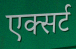
एक्सर्ट